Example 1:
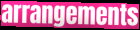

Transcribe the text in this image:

arrangements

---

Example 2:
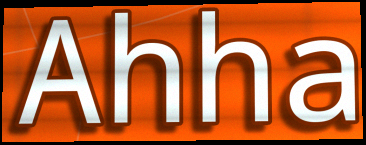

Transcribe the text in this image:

Ahha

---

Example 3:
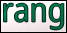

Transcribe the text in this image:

rang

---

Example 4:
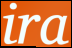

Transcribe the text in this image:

ira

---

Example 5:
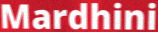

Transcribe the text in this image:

Mardhini